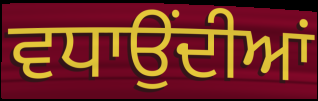
ਵਧਾਉਂਦੀਆਂ